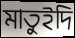
মাতুইদি